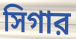
সিগার